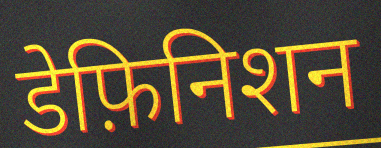
डेफ़िनिशन